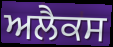
ਅਲੈਕਸ